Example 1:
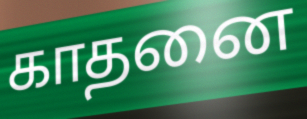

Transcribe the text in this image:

காதனை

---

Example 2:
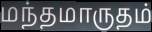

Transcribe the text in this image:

மந்தமாருதம்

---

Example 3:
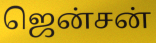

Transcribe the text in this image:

ஜென்சன்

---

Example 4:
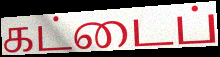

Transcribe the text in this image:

கட்டைப்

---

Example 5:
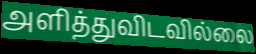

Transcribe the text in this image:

அளித்துவிடவில்லை